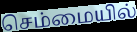
செம்மையில்